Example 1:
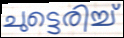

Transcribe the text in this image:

ചുട്ടെരിച്ച്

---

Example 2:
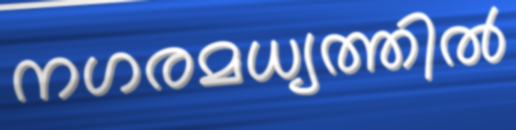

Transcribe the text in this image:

നഗരമധ്യത്തിൽ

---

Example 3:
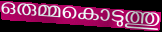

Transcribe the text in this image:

ഒരുമ്മകൊടുത്തു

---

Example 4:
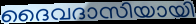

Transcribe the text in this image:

ദൈവദാസിയായി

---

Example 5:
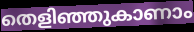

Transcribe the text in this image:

തെളിഞ്ഞുകാണാം